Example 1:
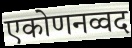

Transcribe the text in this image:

एकोणनव्वद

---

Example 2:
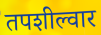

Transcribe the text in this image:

तपशील्वार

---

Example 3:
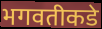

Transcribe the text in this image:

भगवतीकडे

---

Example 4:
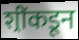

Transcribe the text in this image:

श्रींकडून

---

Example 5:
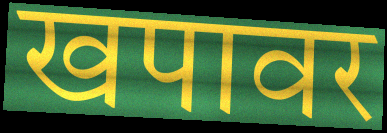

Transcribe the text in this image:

खपावर